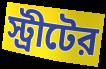
স্ট্রীটের